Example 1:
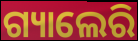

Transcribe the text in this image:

ଗ୍ୟାଲେରି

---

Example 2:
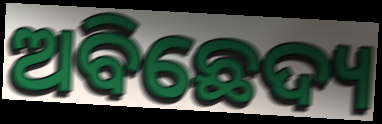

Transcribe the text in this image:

ଅବିଛେଦ୍ୟ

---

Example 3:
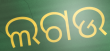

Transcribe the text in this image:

ଲଗଉ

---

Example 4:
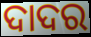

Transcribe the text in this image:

ଦାଦର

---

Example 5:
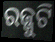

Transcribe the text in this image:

ରଜ୍ଜୁଟି